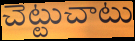
చెట్టుచాటు